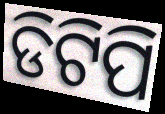
ଡିଟିପି